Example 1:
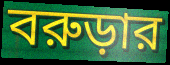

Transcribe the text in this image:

বরুড়ার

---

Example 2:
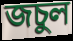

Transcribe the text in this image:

জচুল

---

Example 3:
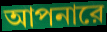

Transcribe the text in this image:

আপনারে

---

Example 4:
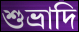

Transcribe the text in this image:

শুভ্রাদি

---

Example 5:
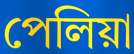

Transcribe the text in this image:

পেলিয়া